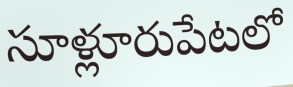
సూళ్లూరుపేటలో